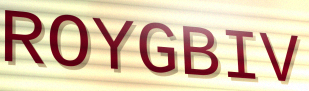
ROYGBIV